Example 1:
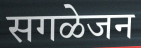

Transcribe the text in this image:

सगळेजन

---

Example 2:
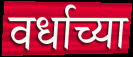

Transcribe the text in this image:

वर्धाच्या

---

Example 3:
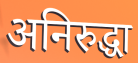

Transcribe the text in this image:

अनिरुद्धा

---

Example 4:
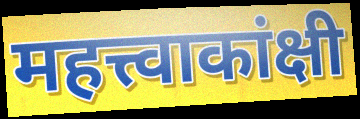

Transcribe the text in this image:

महत्त्वाकांक्षी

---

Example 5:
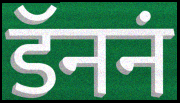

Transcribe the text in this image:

डॅननं